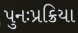
પુનઃપ્રક્રિયા